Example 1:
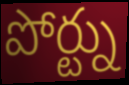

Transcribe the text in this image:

పోర్ట్ను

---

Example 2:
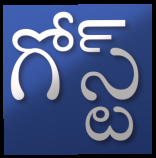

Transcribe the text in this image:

గోస్ట్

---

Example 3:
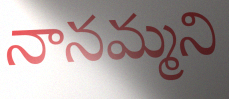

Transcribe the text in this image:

నానమ్మని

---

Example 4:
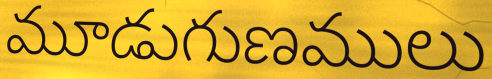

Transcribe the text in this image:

మూడుగుణములు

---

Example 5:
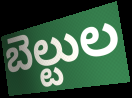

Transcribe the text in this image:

బెల్టుల